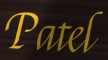
Patel